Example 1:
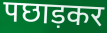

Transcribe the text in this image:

पछाड़कर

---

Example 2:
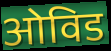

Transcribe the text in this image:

ओविड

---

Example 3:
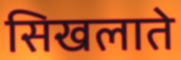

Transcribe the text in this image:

सिखलाते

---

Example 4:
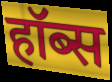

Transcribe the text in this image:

हॉब्स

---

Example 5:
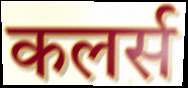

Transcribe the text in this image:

कलर्स